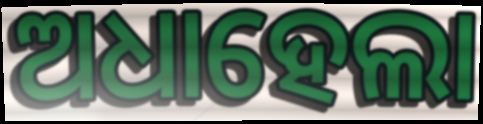
ଅଧାହେଲା